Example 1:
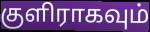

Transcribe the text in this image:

குளிராகவும்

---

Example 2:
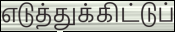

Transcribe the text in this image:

எடுத்துக்கிட்டுப்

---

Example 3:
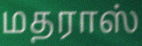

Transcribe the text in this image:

மதராஸ்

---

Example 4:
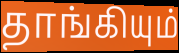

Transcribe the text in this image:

தாங்கியும்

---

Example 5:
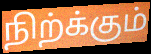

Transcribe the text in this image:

நிற்க்கும்